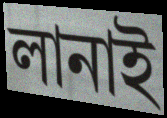
লানাই